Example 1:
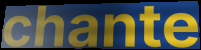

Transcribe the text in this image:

chante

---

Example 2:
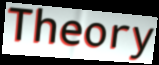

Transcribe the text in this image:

Theory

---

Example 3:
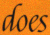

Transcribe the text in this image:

does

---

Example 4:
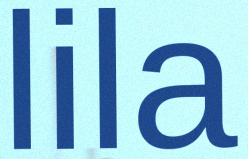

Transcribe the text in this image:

lila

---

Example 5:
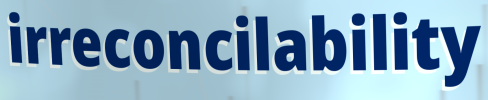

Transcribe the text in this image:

irreconcilability